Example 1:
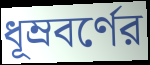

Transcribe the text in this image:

ধূম্রবর্ণের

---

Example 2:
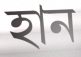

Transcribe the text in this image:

হান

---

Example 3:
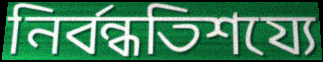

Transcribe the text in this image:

নির্বন্ধতিশয্যে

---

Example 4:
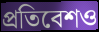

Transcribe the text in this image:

প্রতিবেশও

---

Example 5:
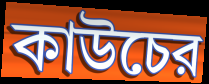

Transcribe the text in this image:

কাউচের